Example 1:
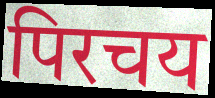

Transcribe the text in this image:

पिरचय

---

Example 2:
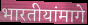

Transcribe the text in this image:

भारतीयांमागे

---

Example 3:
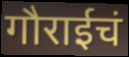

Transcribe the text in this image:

गौराईचं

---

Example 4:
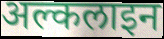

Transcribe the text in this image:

अल्कलाइन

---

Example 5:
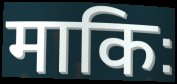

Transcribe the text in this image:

माकिः